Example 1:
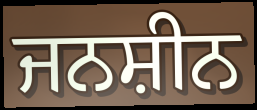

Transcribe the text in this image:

ਜਨਸ਼ੀਨ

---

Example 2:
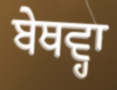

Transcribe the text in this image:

ਬੇਥਵ੍ਹਾ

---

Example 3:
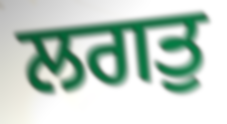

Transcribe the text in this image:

ਲਗਤੁ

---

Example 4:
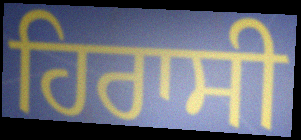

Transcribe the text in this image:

ਹਿਰਾਸੀ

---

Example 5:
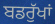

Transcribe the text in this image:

ਬਡਰੁੱਖਾਂ